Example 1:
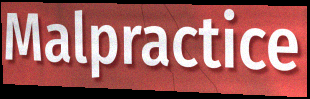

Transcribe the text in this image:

Malpractice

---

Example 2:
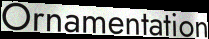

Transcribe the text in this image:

Ornamentation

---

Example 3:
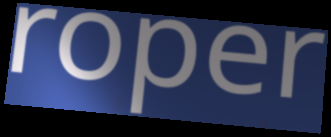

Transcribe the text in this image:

roper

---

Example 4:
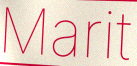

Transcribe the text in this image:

Marit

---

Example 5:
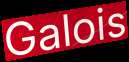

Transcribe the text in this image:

Galois